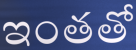
ఇంతతో